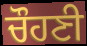
ਚੌਹਣੀ